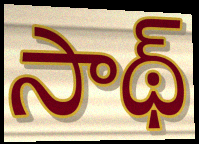
సాథ్